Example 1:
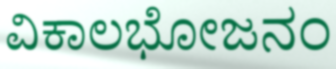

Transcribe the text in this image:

ವಿಕಾಲಭೋಜನಂ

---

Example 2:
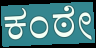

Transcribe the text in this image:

ಕಂಠೇ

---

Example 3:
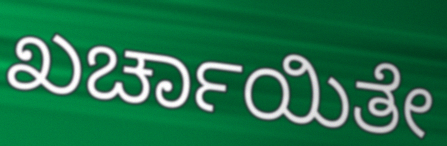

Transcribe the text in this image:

ಖರ್ಚಾಯಿತೇ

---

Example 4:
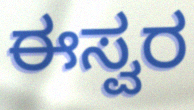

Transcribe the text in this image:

ಈಸ್ವರ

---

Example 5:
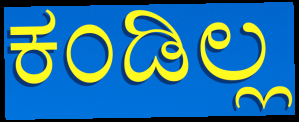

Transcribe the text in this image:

ಕಂಡಿಲ್ಲ